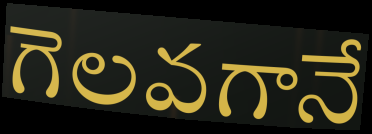
గెలవగానే